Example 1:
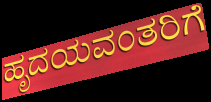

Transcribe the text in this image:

ಹೃದಯವಂತರಿಗೆ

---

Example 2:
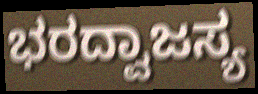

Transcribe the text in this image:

ಭರದ್ವಾಜಸ್ಯ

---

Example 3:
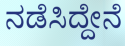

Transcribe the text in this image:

ನಡೆಸಿದ್ದೇನೆ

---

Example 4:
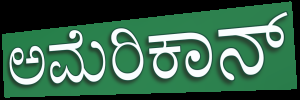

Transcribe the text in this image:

ಅಮೆರಿಕಾನ್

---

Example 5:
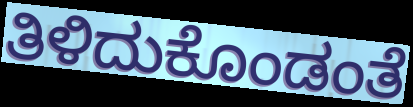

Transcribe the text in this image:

ತಿಳಿದುಕೊಂಡಂತೆ